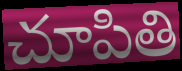
చూపితి